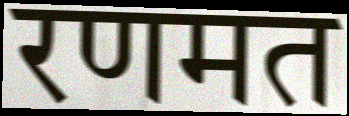
रणमत